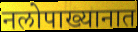
नलोपाख्यानात